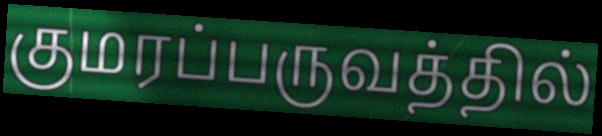
குமரப்பருவத்தில்